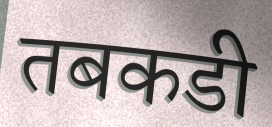
तबकडी